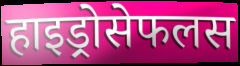
हाइड्रोसेफलस